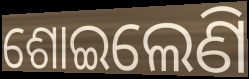
ଶୋଇଲେଣି